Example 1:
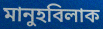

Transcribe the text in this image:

মানুহবিলাক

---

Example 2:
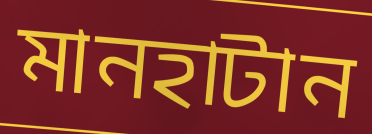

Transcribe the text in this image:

মানহাটান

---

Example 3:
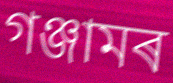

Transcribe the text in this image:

গঞ্জামৰ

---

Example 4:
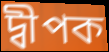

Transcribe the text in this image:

দ্বীপক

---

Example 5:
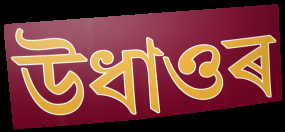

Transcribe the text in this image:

উধাওৰ